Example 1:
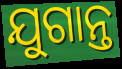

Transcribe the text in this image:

ଯୁଗାନ୍ତ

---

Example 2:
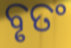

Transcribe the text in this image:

ବୃତଂ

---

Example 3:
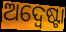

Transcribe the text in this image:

ଅଦ୍ୱେଷ୍ଟା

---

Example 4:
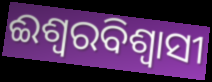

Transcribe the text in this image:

ଈଶ୍ବରବିଶ୍ବାସୀ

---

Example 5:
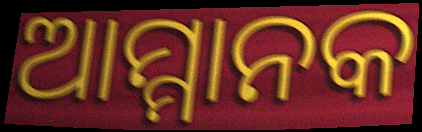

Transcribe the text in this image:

ଆମ୍ମାନକ